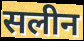
सलीन